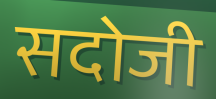
सदोजी